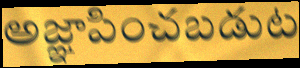
అజ్ఞాపించబడుట